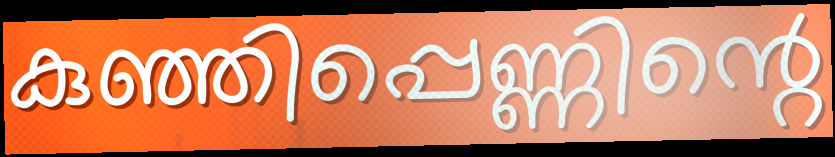
കുഞ്ഞിപ്പെണ്ണിന്റെ